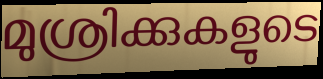
മുശ്രിക്കുകളുടെ